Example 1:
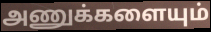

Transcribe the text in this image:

அணுக்களையும்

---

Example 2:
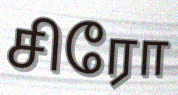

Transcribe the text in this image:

சிரோ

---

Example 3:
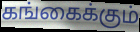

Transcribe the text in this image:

கங்கைக்கும்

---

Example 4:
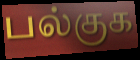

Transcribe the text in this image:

பல்குக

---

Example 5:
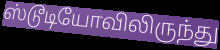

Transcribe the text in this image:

ஸ்டூடியோவிலிருந்து